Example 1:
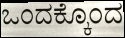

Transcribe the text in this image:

ಒಂದಕ್ಕೊಂದ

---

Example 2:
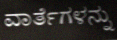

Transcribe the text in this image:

ವಾರ್ತೆಗಳನ್ನು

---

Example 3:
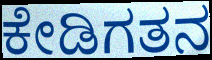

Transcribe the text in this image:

ಕೇಡಿಗತನ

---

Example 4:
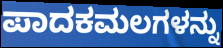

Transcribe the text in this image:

ಪಾದಕಮಲಗಳನ್ನು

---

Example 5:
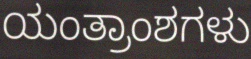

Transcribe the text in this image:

ಯಂತ್ರಾಂಶಗಳು